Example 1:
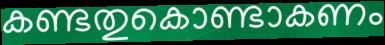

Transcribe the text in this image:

കണ്ടതുകൊണ്ടാകണം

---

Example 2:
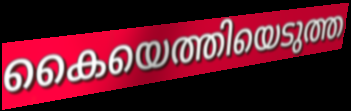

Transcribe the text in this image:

കൈയെത്തിയെടുത്ത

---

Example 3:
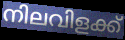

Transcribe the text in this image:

നിലവിളക്ക്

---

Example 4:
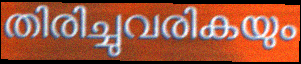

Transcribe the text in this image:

തിരിച്ചുവരികയും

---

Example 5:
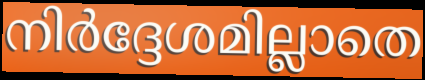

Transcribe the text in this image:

നിർദ്ദേശമില്ലാതെ